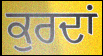
ਕੁਰਦਾਂ